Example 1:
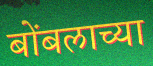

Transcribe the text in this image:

बोंबलाच्या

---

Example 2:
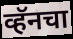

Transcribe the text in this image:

व्हॅनचा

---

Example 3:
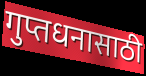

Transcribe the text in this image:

गुप्तधनासाठी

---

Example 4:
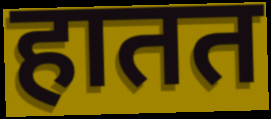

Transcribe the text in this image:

हातत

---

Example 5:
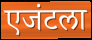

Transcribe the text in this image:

एजंटला